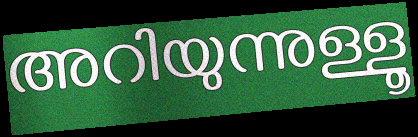
അറിയുന്നുള്ളൂ